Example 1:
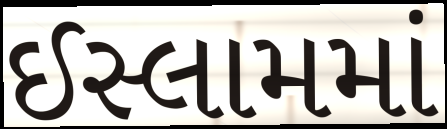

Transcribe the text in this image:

ઈસ્લામમાં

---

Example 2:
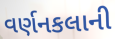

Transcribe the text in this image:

વર્ણનકલાની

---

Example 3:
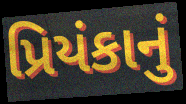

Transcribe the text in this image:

પ્રિયંકાનું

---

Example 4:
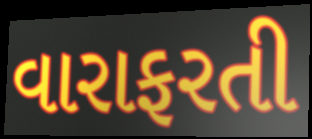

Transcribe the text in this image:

વારાફરતી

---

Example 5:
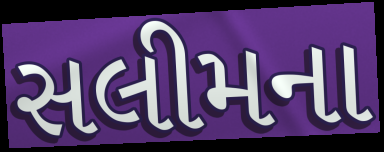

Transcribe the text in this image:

સલીમના